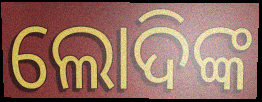
ଲୋଦିଙ୍କ